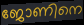
ജോണിനെ